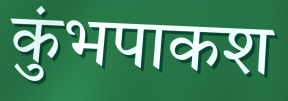
कुंभपाकश